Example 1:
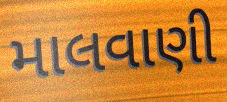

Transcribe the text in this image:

માલવાણી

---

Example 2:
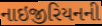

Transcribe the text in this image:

નાઇજીરિયનની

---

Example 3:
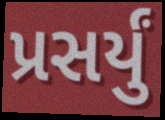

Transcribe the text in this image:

પ્રસર્યું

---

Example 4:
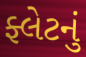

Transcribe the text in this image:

ફ્લેટનું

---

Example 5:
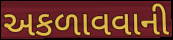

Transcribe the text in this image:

અકળાવવાની